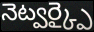
నెట్వర్క్పై